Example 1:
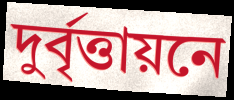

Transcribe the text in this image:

দুর্বৃত্তায়নে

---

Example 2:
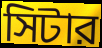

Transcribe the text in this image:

সিটার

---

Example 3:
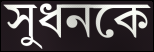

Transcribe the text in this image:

সুধনকে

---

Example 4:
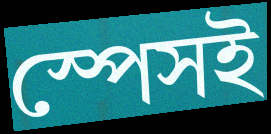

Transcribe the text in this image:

স্পেসই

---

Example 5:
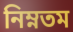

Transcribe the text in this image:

নিম্নতম